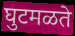
घुटमळते